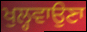
ਖੁਲ੍ਹਵਾਉਣਾ